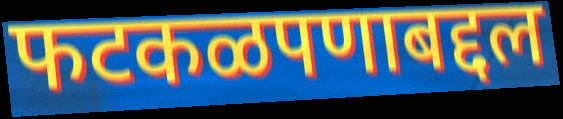
फटकळपणाबद्दल